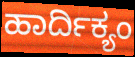
ಹಾರ್ದಿಕ್ಯಂ